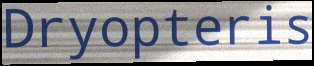
Dryopteris